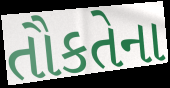
તૌકતેના